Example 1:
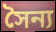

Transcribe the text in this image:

সৈন্য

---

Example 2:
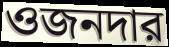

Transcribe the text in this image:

ওজনদার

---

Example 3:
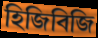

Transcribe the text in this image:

হিজিবিজি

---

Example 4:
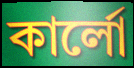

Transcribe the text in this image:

কার্লো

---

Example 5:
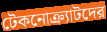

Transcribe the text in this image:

টেকনোক্র্যাটদের